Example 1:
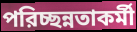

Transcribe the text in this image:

পরিচ্ছন্নতাকর্মী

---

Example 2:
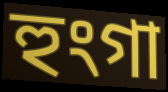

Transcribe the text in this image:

হুংগা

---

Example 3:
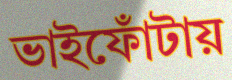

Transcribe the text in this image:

ভাইফোঁটায়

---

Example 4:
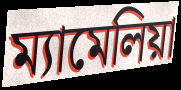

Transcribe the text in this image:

ম্যামেলিয়া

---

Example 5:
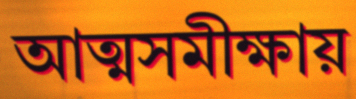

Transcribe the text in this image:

আত্মসমীক্ষায়